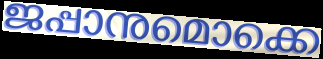
ജപ്പാനുമൊക്കെ